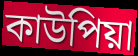
কাউপিয়া